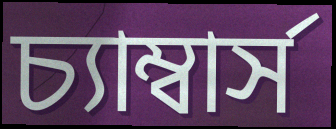
চ্যাম্বার্স